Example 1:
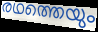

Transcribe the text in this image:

രഥത്തെയും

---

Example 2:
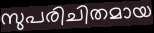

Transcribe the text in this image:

സുപരിചിതമായ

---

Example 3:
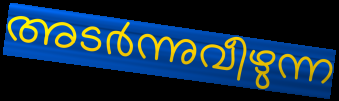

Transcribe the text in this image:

അടർന്നുവീഴുന്ന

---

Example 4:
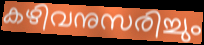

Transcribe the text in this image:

കഴിവനുസരിച്ചും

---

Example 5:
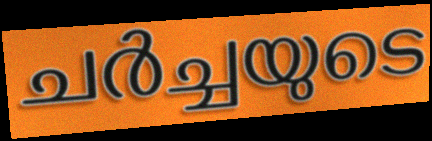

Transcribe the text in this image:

ചർച്ചയുടെ